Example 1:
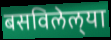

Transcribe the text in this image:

बसविलेल्या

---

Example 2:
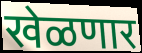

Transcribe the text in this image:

खेळणार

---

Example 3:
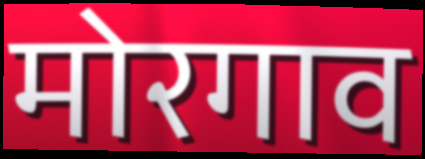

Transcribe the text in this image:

मोरगाव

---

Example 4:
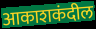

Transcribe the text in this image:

आकाशकंदील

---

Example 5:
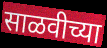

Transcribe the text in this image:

साळवीच्या